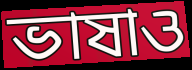
ভাষাও